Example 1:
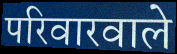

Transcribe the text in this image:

परिवारवाले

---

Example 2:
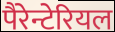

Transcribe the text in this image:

पैरेन्टेरियल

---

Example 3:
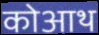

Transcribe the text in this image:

कोआथ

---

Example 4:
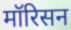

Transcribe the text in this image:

मॉरिसन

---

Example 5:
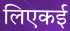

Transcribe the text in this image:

लिएकई